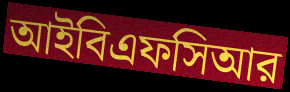
আইবিএফসিআর